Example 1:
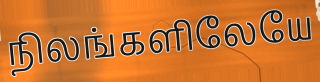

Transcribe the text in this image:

நிலங்களிலேயே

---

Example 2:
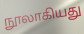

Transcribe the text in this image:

நூலாகியது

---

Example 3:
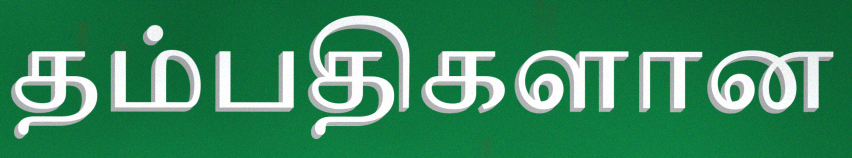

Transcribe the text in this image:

தம்பதிகளான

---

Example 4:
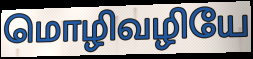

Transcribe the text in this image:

மொழிவழியே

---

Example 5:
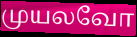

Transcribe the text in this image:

முயலவோ